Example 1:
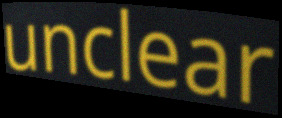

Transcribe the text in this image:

unclear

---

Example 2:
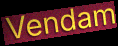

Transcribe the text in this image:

Vendam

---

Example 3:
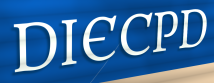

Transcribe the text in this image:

DIECPD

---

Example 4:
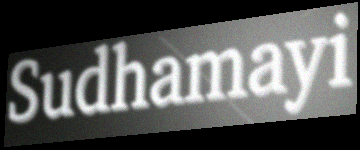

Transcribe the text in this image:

Sudhamayi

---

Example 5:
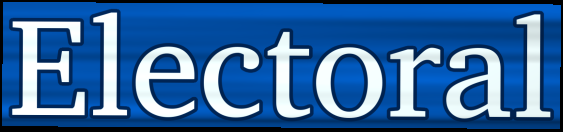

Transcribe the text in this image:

Electoral